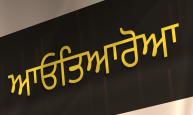
ਆਓਤਿਆਰੋਆ